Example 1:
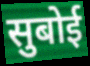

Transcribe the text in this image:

सुबोई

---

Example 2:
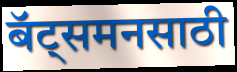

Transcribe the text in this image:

बॅट्समनसाठी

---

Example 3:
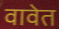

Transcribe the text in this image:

वावेत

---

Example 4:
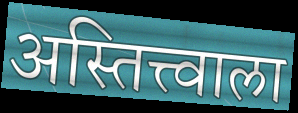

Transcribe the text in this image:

अस्तित्त्वाला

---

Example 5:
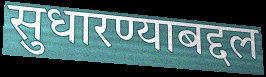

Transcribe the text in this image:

सुधारण्याबद्दल